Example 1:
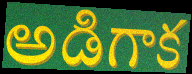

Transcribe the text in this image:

అడిగాక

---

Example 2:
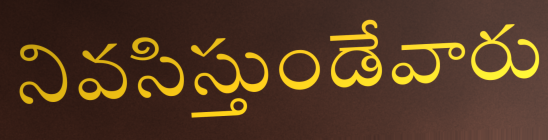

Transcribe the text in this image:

నివసిస్తుండేవారు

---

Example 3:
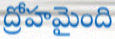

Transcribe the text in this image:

ద్రోహమైంది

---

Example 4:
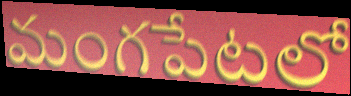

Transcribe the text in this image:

మంగపేటలో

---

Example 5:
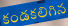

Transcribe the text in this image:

కండకలిగిన